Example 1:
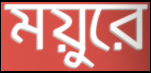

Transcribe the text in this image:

ময়ুরে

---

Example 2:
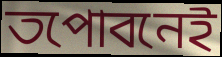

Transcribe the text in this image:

তপোবনেই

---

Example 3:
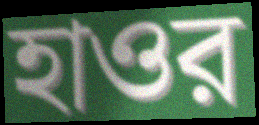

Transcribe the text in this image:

হাওর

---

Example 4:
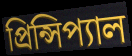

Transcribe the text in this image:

প্রিন্সিপ্যাল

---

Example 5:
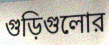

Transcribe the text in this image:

গুড়িগুলোর